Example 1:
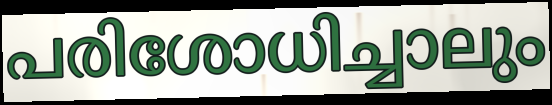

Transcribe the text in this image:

പരിശോധിച്ചാലും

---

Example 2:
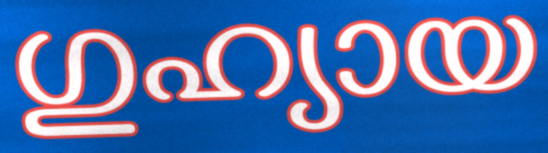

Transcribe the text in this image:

ഗുഹ്യായ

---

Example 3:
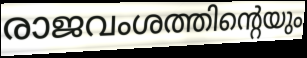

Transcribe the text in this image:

രാജവംശത്തിന്റെയും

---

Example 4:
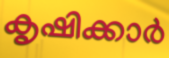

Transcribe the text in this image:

കൃഷിക്കാർ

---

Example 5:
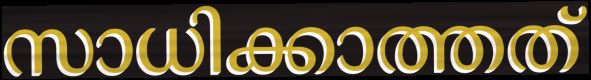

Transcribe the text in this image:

സാധിക്കാത്തത്